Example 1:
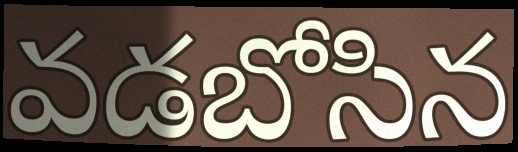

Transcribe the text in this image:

వడబోసిన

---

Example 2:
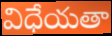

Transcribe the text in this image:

విధేయతా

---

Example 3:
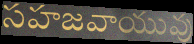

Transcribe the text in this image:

సహజవాయువు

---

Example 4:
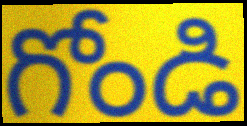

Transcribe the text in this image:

గోండి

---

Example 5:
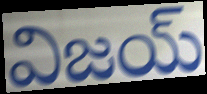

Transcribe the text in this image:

విజయ్